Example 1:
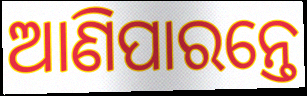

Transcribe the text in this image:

ଆଣିପାରନ୍ତେ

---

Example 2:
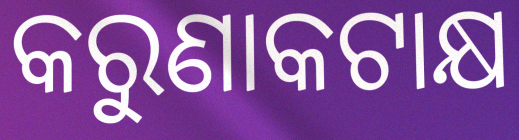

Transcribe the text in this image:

କରୁଣାକଟାକ୍ଷ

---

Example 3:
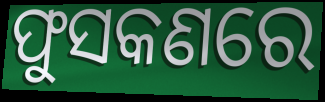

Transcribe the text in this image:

ଫୁସକଣରେ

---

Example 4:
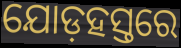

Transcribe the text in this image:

ଯୋଡ଼ହସ୍ତରେ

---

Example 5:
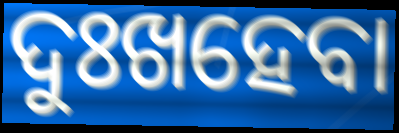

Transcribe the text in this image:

ଦୁଃଖହେବା